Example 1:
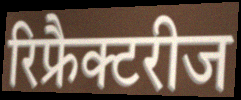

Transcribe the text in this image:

रिफ्रैक्टरीज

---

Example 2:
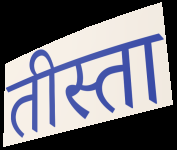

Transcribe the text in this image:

तीस्ता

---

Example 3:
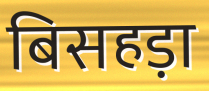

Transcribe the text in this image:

बिसहड़ा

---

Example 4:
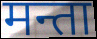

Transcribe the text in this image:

मन्ता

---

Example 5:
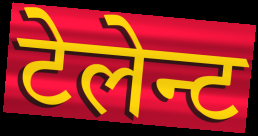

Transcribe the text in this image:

टेलेन्ट